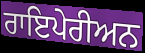
ਰਾਇਪੇਰੀਅਨ